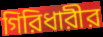
গিরিধারীর